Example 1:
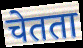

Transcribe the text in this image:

चेतता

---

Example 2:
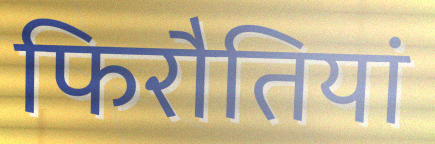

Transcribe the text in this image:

फिरौतियां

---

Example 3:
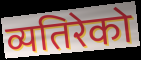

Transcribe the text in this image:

व्यतिरेको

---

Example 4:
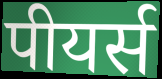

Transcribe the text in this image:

पीयर्स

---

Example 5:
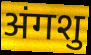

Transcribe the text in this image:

अंगशु